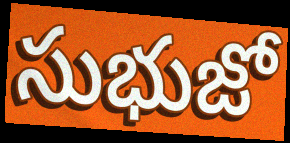
సుభుజో